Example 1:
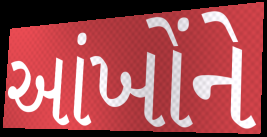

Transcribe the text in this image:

આંખોંને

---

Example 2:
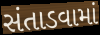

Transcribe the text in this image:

સંતાડવામાં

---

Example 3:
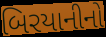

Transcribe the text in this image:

બિરયાનીનો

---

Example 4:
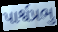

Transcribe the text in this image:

પાર્શ્વપ્રભુ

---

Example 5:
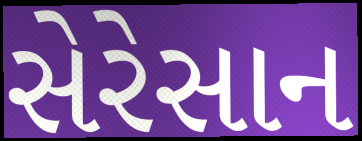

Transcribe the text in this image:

સેરેસાન